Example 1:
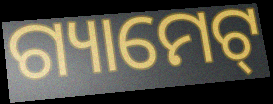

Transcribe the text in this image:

ଗ୍ୟାମେଟ୍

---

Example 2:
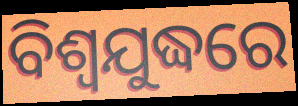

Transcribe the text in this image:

ବିଶ୍ବଯୁଦ୍ଧରେ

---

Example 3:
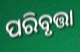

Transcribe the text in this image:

ପରିବୃତ୍ତା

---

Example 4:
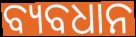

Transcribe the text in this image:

ବ୍ୟବଧାନ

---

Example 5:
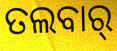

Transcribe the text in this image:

ତଲବାର୍